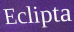
Eclipta